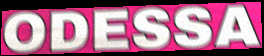
ODESSA